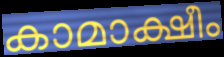
കാമാക്ഷീം